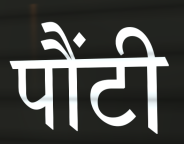
पौंटी